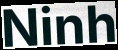
Ninh